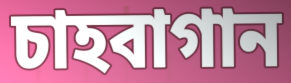
চাহবাগান